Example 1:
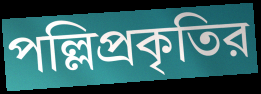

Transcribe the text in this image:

পল্লিপ্রকৃতির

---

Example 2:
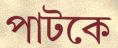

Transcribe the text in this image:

পাটকে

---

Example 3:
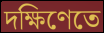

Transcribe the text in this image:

দক্ষিণেতে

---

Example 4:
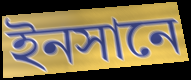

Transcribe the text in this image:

ইনসানে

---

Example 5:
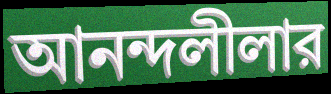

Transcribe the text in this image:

আনন্দলীলার